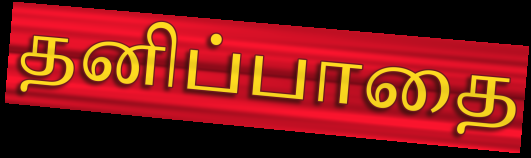
தனிப்பாதை